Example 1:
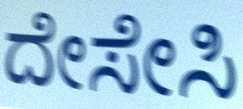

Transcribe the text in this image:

ದೇಸೇಸಿ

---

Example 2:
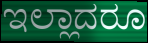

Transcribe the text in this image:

ಇಲ್ಲಾದರೂ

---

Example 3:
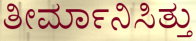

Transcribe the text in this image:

ತೀರ್ಮಾನಿಸಿತ್ತು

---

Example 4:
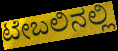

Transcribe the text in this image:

ಟೇಬಲಿನಲ್ಲಿ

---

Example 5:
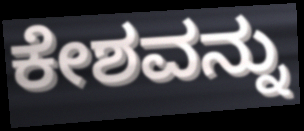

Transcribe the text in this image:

ಕೇಶವನ್ನು